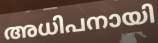
അധിപനായി